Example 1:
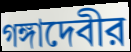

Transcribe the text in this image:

গঙ্গাদেবীর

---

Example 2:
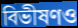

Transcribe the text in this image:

বিভীষণও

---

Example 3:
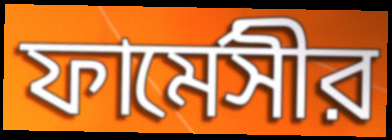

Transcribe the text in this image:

ফার্মেসীর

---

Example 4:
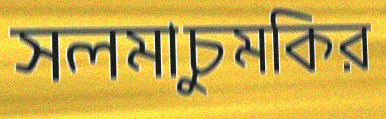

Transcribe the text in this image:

সলমাচুমকির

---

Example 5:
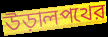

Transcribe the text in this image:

উড়ালপথের